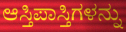
ಆಸ್ತಿಪಾಸ್ತಿಗಳನ್ನು